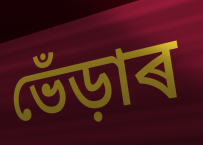
ভেঁড়াৰ